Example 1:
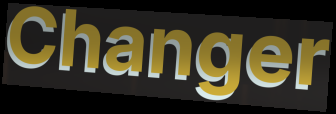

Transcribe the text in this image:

Changer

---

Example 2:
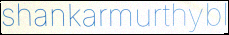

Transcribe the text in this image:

shankarmurthybl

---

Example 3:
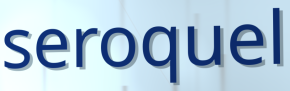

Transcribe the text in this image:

seroquel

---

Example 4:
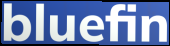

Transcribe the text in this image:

bluefin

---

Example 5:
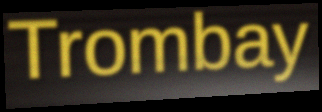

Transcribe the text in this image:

Trombay